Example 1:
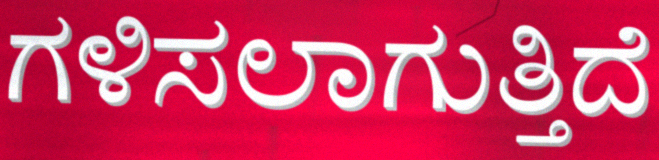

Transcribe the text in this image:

ಗಳಿಸಲಾಗುತ್ತಿದೆ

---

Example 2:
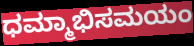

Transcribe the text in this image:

ಧಮ್ಮಾಭಿಸಮಯಂ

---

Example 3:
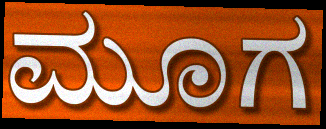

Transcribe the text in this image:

ಮೂಗ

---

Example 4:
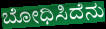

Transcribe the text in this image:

ಬೋಧಿಸಿದೆನು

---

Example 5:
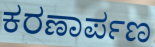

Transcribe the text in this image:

ಕರಣಾರ್ಪಣ